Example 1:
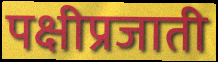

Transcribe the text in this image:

पक्षीप्रजाती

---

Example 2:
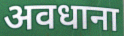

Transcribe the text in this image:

अवधाना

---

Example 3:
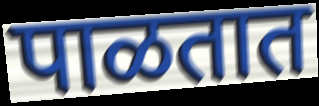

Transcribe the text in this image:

पाळतात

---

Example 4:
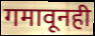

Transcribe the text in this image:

गमावूनही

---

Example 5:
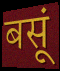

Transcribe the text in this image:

बसूं